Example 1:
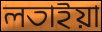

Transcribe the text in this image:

লতাইয়া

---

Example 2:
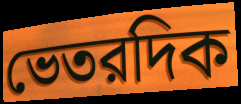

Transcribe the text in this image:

ভেতরদিক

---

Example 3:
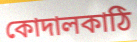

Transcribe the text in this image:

কোদালকাঠি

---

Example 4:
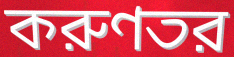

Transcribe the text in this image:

করুণতর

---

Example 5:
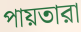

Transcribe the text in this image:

পায়তারা